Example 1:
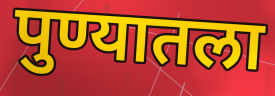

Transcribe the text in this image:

पुण्यातला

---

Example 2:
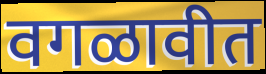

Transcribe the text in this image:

वगळावीत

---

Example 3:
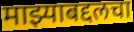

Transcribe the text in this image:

माझ्याबद्दलचा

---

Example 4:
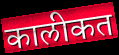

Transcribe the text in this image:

कालीकत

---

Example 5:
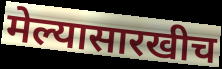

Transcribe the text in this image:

मेल्यासारखीच